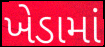
ખેડામાં